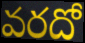
వరదో